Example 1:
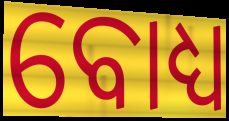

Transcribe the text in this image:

ବୋଧ୍ୟ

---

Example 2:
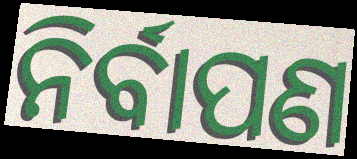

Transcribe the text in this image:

ନିର୍ବାପଣ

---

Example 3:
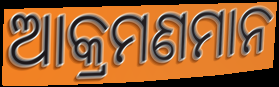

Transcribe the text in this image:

ଆକ୍ରମଣମାନ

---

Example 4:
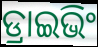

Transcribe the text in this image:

ଡ୍ରାଇଭିଂ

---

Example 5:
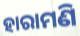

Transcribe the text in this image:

ହାରାମଣି